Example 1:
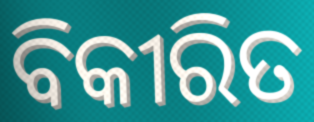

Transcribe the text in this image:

ବିକୀରିତ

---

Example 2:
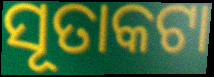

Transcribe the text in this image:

ସୂତାକଟା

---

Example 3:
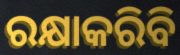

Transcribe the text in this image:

ରକ୍ଷାକରିବି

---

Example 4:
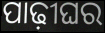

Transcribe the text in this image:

ପାଢ଼ୀଘର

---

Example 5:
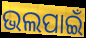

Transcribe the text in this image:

ଭଲପାଇଁ